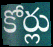
కోర్లు